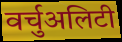
वर्चुअलिटी